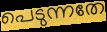
പെടുന്നതേ